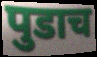
पुडाच